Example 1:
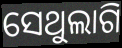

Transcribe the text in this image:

ସେଥୁଲାଗି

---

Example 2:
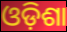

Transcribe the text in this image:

ଓଡ଼ିଶା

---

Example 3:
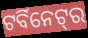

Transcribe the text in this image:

ଟର୍ବିନେଟ୍‌ର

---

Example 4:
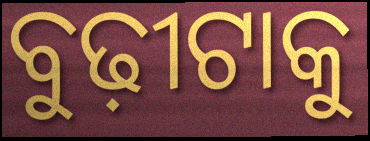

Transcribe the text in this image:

ବୁଢ଼ୀଟାକୁ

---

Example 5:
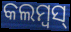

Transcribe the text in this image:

କଲମ୍ବସ୍